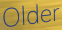
Older